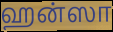
ஹன்ஸா